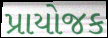
પ્રાયોજક